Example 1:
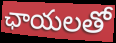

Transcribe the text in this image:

ఛాయలతో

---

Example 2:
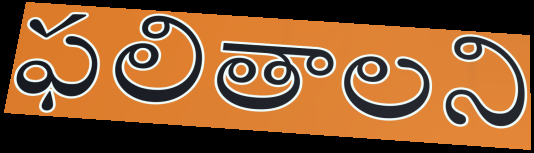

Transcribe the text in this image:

ఫలితాలని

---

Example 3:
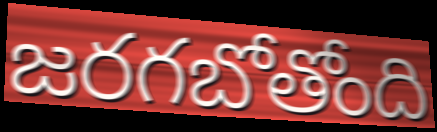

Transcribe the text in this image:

జరగబోతోంది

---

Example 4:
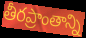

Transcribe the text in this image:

తీరప్రాంతాన్ని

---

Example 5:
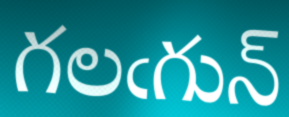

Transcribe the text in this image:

గలఁగున్